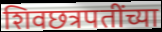
शिवछत्रपतींच्या